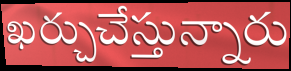
ఖర్చుచేస్తున్నారు